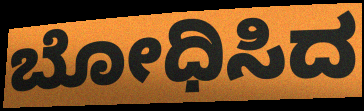
ಬೋಧಿಸಿದ